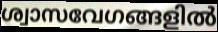
ശ്വാസവേഗങ്ങളിൽ